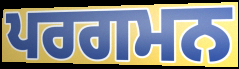
ਪਰਗਮਨ